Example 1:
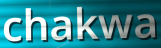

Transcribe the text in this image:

chakwa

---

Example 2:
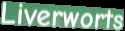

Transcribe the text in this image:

Liverworts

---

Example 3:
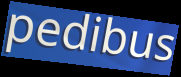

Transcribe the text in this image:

pedibus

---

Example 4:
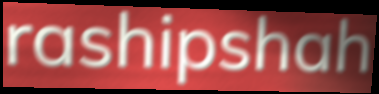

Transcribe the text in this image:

rashipshah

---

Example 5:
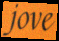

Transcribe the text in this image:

jove